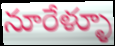
నూరేళ్ళూ